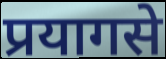
प्रयागसे